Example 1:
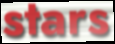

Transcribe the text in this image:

stars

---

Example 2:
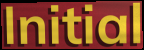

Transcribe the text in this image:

Initial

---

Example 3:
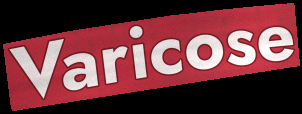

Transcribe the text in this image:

Varicose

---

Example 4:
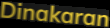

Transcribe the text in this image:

Dinakaran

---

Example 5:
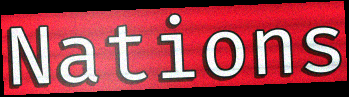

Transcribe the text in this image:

Nations